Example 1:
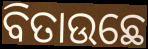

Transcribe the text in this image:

ବିତାଉଛେ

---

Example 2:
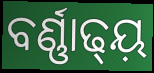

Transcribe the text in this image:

ବର୍ଣ୍ଣାଢ୍ୟ଼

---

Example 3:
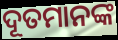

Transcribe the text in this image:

ଦୂତମାନଙ୍କ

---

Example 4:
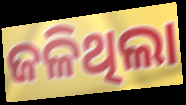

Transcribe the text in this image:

ଜଳିଥିଲା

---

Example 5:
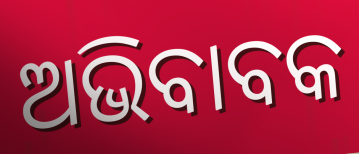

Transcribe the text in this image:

ଅଭିବାବକ